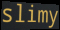
slimy